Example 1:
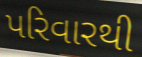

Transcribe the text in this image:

પરિવારથી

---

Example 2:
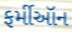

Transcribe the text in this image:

ફર્મીઑન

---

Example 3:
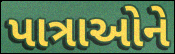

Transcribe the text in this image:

પાત્રાઓને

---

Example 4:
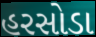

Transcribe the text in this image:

હરસોડા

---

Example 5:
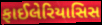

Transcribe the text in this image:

ફાઈલેરિયાસિસ